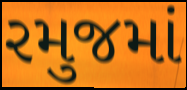
રમુજમાં